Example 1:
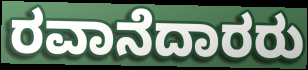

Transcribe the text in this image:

ರವಾನೆದಾರರು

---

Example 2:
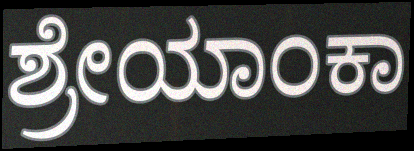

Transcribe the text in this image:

ಶ್ರೇಯಾಂಕಾ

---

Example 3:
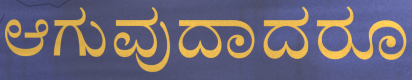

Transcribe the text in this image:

ಆಗುವುದಾದರೂ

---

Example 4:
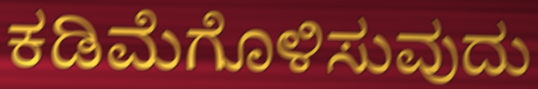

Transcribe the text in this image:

ಕಡಿಮೆಗೊಳಿಸುವುದು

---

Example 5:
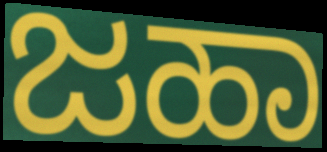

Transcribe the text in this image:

ಜಹಾ